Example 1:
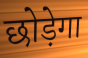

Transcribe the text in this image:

छोड़ेगा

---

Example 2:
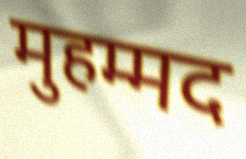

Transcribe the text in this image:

मुहम्‍मद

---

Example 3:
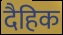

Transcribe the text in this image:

दैहिक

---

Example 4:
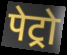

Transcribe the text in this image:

पेट्रो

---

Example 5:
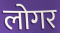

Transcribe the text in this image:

लोगर